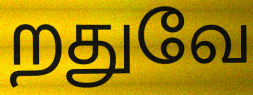
றதுவே